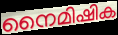
നൈമിഷിക